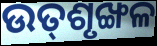
ଉତ୍‌ଶୃଙ୍ଖଳ